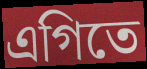
এগিতে